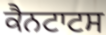
ਕੈਨਟਾਟਸ